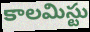
కాలమిస్టు